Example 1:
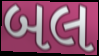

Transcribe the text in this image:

બલ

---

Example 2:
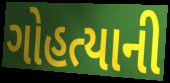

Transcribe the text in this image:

ગોહત્યાની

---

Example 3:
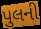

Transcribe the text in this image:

પુલની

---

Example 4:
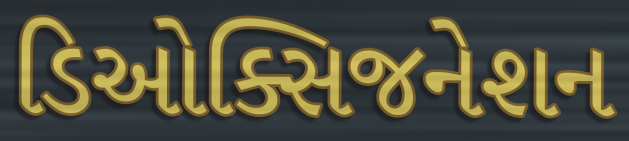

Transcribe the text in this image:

ડિઓક્સિજનેશન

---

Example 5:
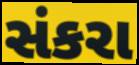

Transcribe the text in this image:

સંકરા